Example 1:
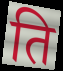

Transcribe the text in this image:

ति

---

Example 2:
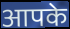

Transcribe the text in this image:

आपके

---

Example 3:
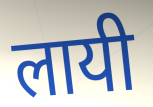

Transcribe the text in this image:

लायी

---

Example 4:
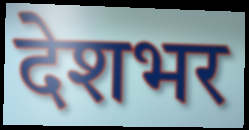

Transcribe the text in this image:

देशभर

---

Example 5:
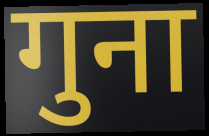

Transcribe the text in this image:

गुना